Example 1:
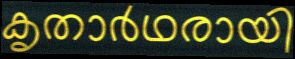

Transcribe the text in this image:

കൃതാർഥരായി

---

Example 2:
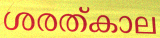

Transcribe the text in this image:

ശരത്കാല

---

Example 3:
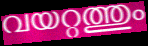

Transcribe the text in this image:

വയറ്റത്തും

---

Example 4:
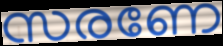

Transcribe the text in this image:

സരണേ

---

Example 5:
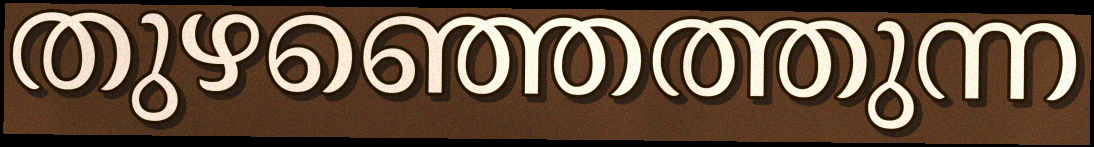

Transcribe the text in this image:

തുഴഞ്ഞെത്തുന്ന